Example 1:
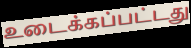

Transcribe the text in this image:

உடைக்கப்பட்டது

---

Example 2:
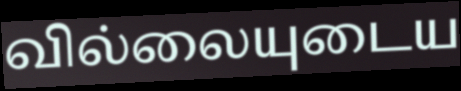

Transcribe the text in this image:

வில்லையுடைய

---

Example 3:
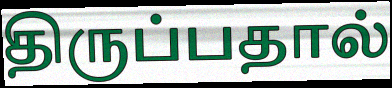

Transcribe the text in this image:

திருப்பதால்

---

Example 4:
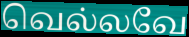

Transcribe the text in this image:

வெல்லவே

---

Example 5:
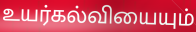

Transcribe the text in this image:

உயர்கல்வியையும்